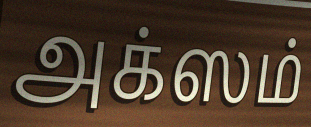
அக்ஸம்